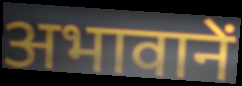
अभावानें